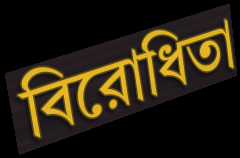
বিরোধিতা